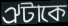
ঐটাকে